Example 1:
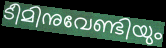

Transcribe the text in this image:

ടീമിനുവേണ്ടിയും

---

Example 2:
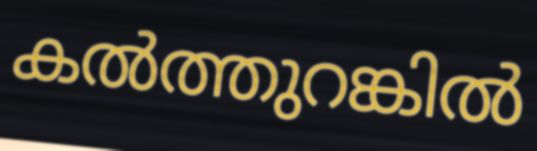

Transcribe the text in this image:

കൽത്തുറങ്കിൽ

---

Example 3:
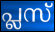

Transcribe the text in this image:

പ്ലസ്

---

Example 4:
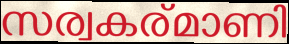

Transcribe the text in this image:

സര്വകര്മാണി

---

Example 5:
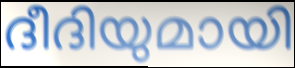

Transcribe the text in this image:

ദീദിയുമായി